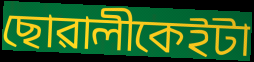
ছোৱালীকেইটা